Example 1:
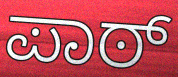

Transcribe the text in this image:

ಪಾಠ್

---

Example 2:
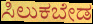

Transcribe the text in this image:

ಸಿಲುಕಬೇಡ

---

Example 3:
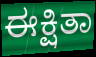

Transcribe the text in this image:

ಈಕ್ಷಿತಾ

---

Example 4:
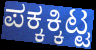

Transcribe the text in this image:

ಪಕ್ಕಕ್ಕಿಟ್ಟ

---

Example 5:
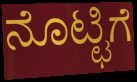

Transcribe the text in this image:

ನೊಟ್ಟಿಗೆ